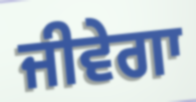
ਜੀਵੇਗਾ